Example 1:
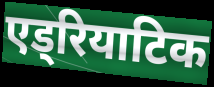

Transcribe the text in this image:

एड्रियाटिक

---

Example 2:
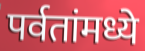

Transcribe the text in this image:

पर्वतांमध्ये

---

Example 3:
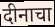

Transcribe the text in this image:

दीनाचा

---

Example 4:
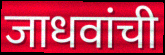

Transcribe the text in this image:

जाधवांची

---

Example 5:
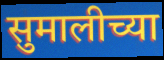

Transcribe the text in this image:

सुमालीच्या